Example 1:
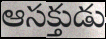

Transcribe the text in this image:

ఆసక్తుడు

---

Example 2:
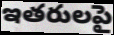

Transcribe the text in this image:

ఇతరులపై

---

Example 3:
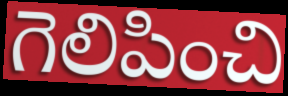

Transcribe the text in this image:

గెలిపించి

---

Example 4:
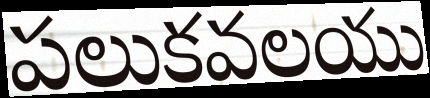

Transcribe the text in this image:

పలుకవలయు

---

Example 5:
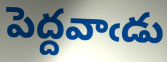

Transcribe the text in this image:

పెద్దవాఁడు